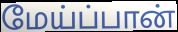
மேய்ப்பான்